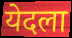
येदला